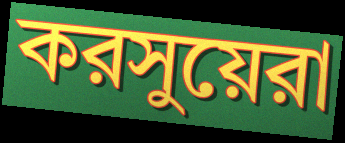
করসুয়েরা